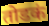
तोडकं